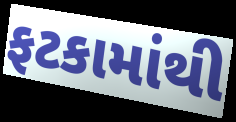
ફટકામાંથી